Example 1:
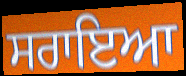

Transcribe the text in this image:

ਸਰਾਇਆ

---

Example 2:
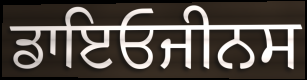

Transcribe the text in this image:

ਡਾਇਓਜੀਨਸ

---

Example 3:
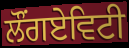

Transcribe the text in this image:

ਲੌਂਗਏਵਿਟੀ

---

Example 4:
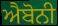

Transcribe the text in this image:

ਐਬੋਨੀ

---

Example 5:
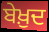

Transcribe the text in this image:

ਬੇਖ਼ੁਦ